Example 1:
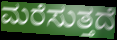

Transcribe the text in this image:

ಮರೆಸುತ್ತದೆ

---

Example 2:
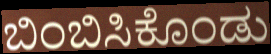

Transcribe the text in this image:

ಬಿಂಬಿಸಿಕೊಂಡು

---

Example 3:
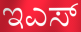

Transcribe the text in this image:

ಇಎಸ್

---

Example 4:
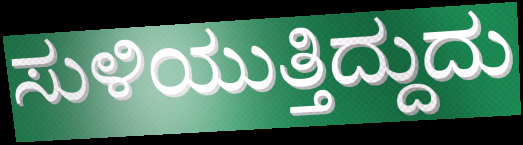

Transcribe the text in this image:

ಸುಳಿಯುತ್ತಿದ್ದುದು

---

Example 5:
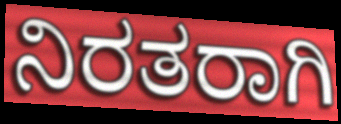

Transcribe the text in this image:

ನಿರತರಾಗಿ